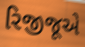
રિજીજૂએ